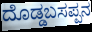
ದೊಡ್ಡಬಸಪ್ಪನ